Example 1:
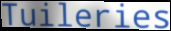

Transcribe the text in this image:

Tuileries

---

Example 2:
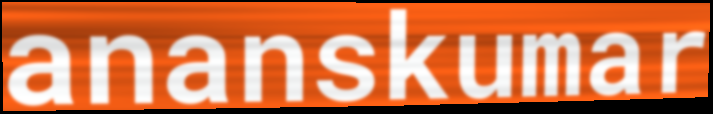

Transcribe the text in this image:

ananskumar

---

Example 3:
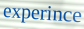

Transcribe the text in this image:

experince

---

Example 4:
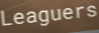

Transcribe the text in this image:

Leaguers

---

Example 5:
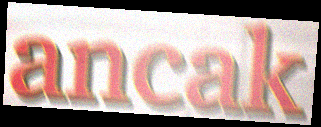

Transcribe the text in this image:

ancak